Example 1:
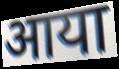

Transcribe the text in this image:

आया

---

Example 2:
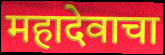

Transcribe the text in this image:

महादेवाचा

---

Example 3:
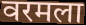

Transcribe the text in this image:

वरमला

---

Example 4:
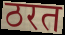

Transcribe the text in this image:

ठरत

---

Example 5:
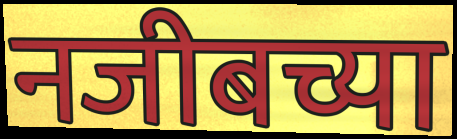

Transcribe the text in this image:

नजीबच्या